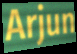
Arjun